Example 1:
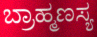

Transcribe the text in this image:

ಬ್ರಾಹ್ಮಣಸ್ಯ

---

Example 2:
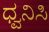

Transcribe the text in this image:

ಧ್ವನಿಸಿ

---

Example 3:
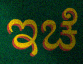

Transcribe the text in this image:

ಇಚೆ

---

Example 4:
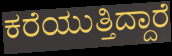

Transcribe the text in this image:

ಕರೆಯುತ್ತಿದ್ದಾರೆ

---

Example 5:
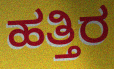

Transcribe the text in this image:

ಹತ್ತಿರ